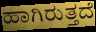
ಹಾಗಿರುತ್ತದೆ